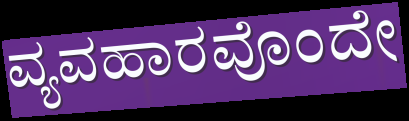
ವ್ಯವಹಾರವೊಂದೇ